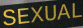
SEXUAL